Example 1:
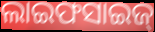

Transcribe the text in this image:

ଲାଇଫସାଇଜ୍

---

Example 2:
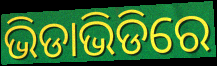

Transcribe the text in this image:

ଭିଡାଭିଡିରେ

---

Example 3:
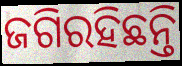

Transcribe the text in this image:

ଜଗିରହିଛନ୍ତି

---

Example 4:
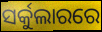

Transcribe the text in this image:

ସର୍କୁଲାରରେ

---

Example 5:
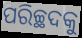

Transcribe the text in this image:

ପରିଚ୍ଛଦକୁ